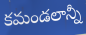
కమండలాన్నీ